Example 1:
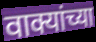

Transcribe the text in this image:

वाक्यांच्या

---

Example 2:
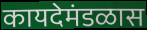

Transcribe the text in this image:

कायदेमंडळास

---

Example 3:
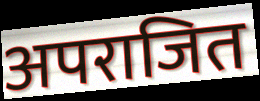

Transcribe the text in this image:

अपराजित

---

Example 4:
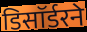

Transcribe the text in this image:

डिसॉर्डरने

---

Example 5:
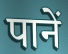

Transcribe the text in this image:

पानें